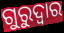
ଗୁରୁଦ୍ଵାର